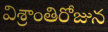
విశ్రాంతిరోజున